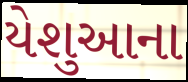
યેશુઆના